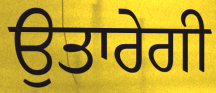
ਉਤਾਰੇਗੀ